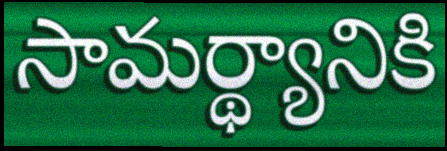
సామర్థ్యానికి